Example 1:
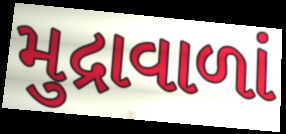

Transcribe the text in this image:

મુદ્રાવાળાં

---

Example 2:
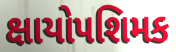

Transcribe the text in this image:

ક્ષાયોપશિમક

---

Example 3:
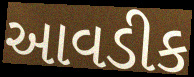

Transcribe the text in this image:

આવડીક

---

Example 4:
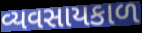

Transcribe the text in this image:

વ્યવસાયકાળ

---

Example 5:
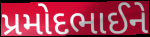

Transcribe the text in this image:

પ્રમોદભાઈને